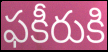
ఫకీరుకి